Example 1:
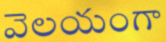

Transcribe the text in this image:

వెలయంగా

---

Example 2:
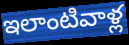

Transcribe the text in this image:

ఇలాంటివాళ్ల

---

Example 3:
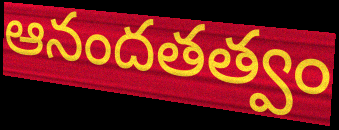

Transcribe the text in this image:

ఆనందతత్వం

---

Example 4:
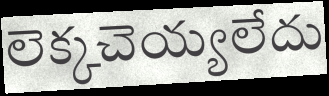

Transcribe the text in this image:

లెక్కచెయ్యలేదు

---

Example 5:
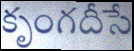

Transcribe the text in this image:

కృంగదీసే